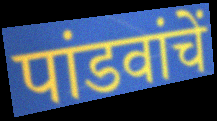
पांडवांचें